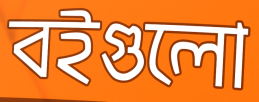
বইগুলো